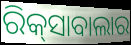
ରିକ୍‌ସାବାଲାର